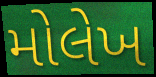
મોલેખ